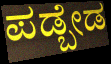
ಪಡ್ಬೇಡ